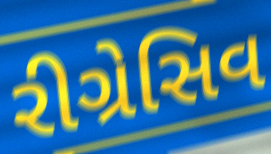
રીગ્રેસિવ